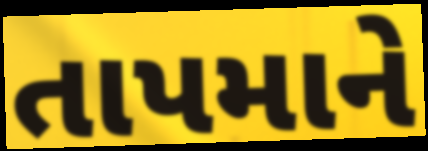
તાપમાને